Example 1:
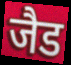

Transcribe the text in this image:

जैड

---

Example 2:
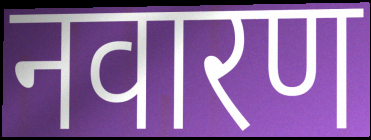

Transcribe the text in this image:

नवारण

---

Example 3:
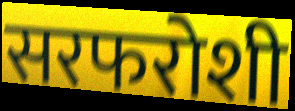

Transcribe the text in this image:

सरफरोशी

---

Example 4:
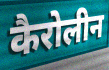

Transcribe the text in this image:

कैरोलीन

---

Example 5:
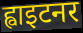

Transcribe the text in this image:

ह्वाइटनर